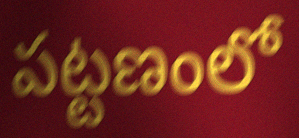
పట్టణంలో